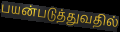
பயன்படுத்துவதில்